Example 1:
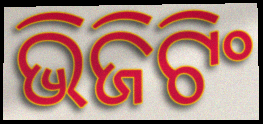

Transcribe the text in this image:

ଭିଜିଟିଂ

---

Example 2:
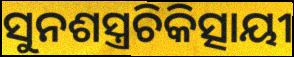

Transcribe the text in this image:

ସୁନଶସ୍ତ୍ରଚିକିତ୍ସାୟୀ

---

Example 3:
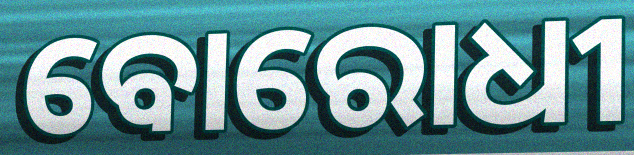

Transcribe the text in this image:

ବୋରୋଧୀ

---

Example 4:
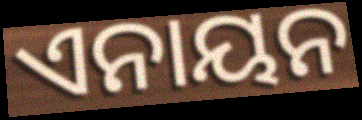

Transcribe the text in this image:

ଏନାୟନ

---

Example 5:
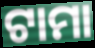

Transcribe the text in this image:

ଟାମା